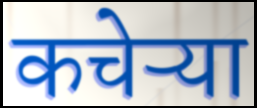
कचेऱ्या